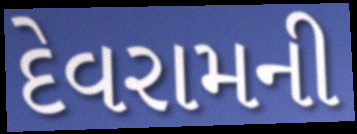
દેવરામની